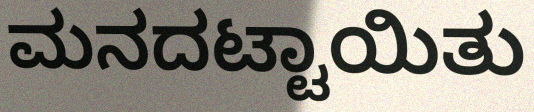
ಮನದಟ್ಟಾಯಿತು